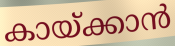
കായ്ക്കാൻ